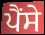
ਪੈਂਸੇ